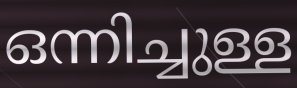
ഒന്നിച്ചുള്ള